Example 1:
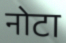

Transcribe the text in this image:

नोटा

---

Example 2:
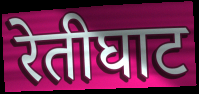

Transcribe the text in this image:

रेतीघाट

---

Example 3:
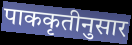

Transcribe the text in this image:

पाककृतीनुसार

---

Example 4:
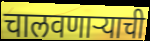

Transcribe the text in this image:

चालवणाऱ्याची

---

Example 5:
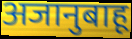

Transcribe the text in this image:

अजानुबाहू